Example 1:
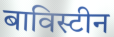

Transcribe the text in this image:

बाविस्टीन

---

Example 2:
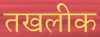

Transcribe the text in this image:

तखलीक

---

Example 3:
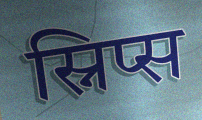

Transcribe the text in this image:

स्निप्स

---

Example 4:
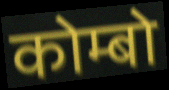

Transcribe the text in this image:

कोम्बो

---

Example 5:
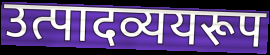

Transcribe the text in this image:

उत्पादव्ययरूप